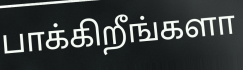
பாக்கிறீங்களா